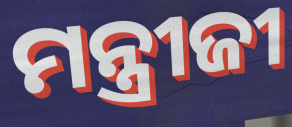
ମନ୍ତ୍ରୀଜୀ